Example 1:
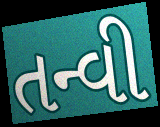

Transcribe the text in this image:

તન્વી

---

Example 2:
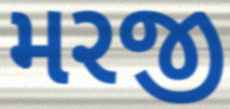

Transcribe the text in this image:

મરજી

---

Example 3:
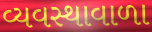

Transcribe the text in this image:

વ્યવસ્થાવાળા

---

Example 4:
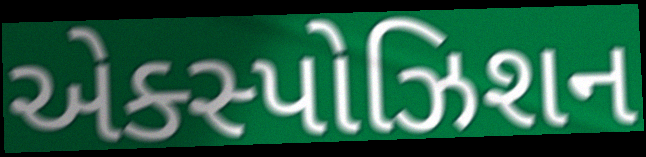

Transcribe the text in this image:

એક્સ્પોઝિશન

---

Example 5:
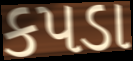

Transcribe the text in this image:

કપડા